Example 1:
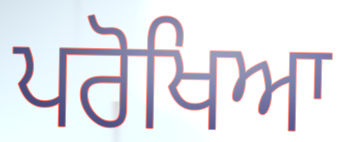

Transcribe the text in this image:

ਪਰੋਖਿਆ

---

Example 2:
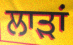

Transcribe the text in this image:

ਲਾੜਾਂ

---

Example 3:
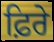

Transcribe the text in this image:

ਫ਼ਿਰੇ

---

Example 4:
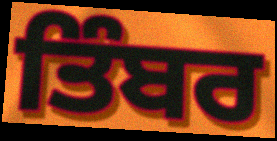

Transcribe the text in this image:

ਤਿੰਬਰ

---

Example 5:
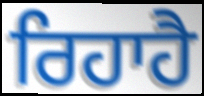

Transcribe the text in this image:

ਰਿਹਾਹੈ